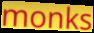
monks